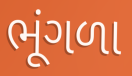
ભૂંગળા